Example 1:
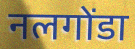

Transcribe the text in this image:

नलगोंडा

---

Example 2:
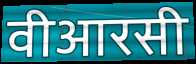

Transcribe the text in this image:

वीआरसी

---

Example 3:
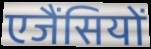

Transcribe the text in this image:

एजैंसियों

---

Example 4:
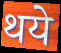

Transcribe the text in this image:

थये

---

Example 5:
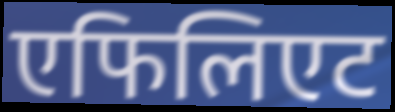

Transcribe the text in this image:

एफिलिएट